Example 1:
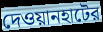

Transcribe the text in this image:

দেওয়ানহাটের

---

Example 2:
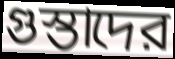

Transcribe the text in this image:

গুস্তাদের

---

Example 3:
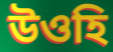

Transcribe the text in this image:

উওহি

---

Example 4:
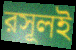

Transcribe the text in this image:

রসূলই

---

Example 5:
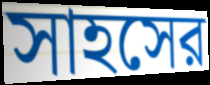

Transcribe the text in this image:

সাহসের